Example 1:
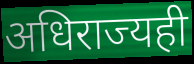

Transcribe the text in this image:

अधिराज्यही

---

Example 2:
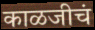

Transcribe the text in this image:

काळजीचं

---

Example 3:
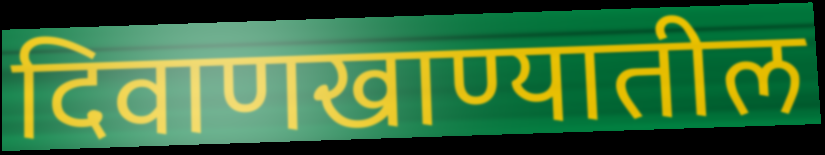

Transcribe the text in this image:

दिवाणखाण्यातील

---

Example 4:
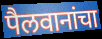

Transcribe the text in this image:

पैलवानांचा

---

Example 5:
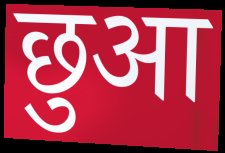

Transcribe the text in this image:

छुआ